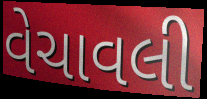
વેચાવલી